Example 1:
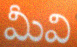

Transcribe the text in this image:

మీవి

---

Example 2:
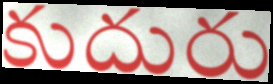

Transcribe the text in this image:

కుదురు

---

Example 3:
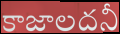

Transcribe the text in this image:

కాజాలదనీ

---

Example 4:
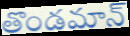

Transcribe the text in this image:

తొండమాన్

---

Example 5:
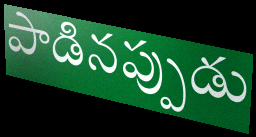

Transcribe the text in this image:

పాడినప్పుడు